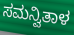
ಸಮನ್ವಿತಾಳ